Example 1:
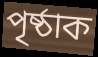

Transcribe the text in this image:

পৃষ্ঠাক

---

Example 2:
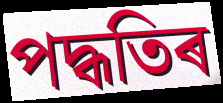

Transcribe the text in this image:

পদ্ধতিৰ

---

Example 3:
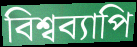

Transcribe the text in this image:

বিশ্বব্যাপি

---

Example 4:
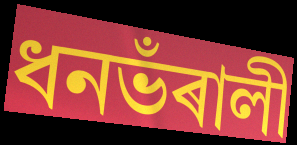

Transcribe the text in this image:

ধনভঁৰালী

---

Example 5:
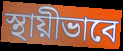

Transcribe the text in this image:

স্থায়ীভাবে